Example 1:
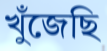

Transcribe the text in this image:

খুঁজেছি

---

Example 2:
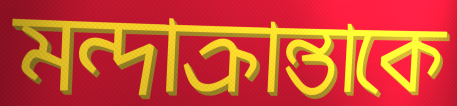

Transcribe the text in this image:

মন্দাক্রান্তাকে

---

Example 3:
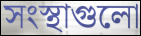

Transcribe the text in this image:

সংস্থাগুলো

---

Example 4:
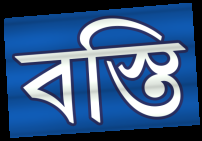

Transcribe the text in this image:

বস্তি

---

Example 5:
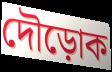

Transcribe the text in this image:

দৌড়োক